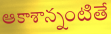
ఆకాశాన్నంటితే